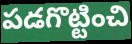
పడగొట్టించి